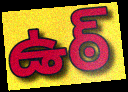
ఉఠ్